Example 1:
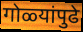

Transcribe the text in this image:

गोळ्यांपुढे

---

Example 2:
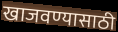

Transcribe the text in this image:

खाजवण्यासाठी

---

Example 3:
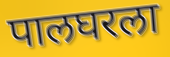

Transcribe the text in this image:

पालघरला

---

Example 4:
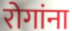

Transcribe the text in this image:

रोगांना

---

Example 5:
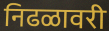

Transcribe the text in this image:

निढळावरी